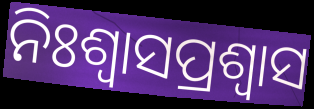
ନିଃଶ୍ୱାସପ୍ରଶ୍ୱାସ